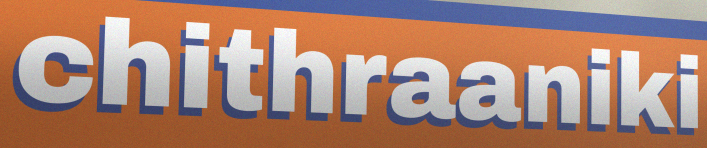
chithraaniki